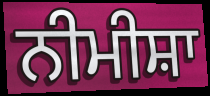
ਨੀਮੀਸ਼ਾ